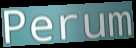
Perum